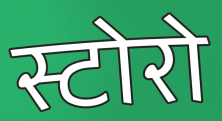
स्टोरो